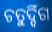
ଚତୁର୍ଦ୍ଦିଗ